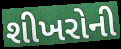
શીખરોની